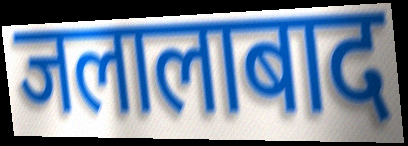
जलालाबाद